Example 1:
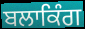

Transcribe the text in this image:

ਬਲਾਕਿੰਗ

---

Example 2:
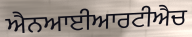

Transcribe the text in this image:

ਐਨਆਈਆਰਟੀਐਚ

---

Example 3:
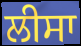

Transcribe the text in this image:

ਲੀਸਾ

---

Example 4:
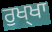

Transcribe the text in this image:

ਰੁਖ੍ਖਾ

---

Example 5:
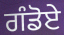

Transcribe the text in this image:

ਗੰਡੋਏ